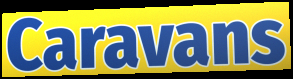
Caravans